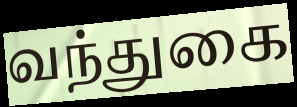
வந்துகை